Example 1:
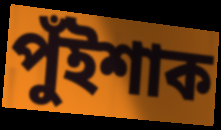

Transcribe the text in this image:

পুঁইশাক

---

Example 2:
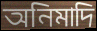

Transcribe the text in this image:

অনিমাদি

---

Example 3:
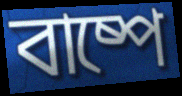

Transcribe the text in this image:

বাষ্পে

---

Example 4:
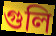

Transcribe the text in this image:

গুলি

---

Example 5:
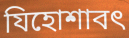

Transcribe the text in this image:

যিহোশাবৎ